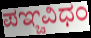
ಪಞ್ಚವಿಧಂ